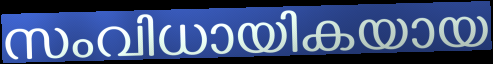
സംവിധായികയായ